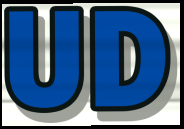
UD